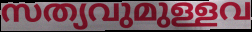
സത്യവുമുള്ളവ